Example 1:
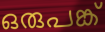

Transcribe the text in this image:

ഒരുപങ്ക്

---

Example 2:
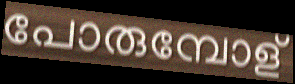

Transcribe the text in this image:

പോരുമ്പോള്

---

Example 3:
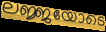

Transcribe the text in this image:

ലജ്ജയോടെ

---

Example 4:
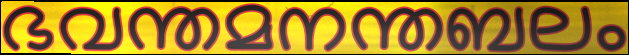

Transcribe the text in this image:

ഭവന്തമനന്തബലം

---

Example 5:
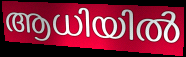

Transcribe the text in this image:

ആധിയിൽ